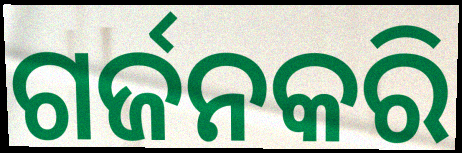
ଗର୍ଜନକରି